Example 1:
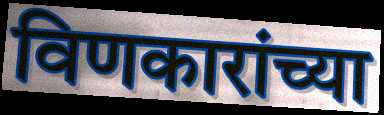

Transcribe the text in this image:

विणकारांच्या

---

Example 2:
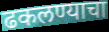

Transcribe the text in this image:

ढकलण्याचा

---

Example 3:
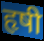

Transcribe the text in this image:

हृषी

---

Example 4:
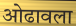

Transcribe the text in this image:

ओढावला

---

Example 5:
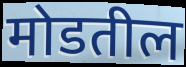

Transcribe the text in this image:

मोडतील